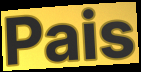
Pais